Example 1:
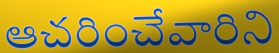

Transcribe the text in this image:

ఆచరించేవారిని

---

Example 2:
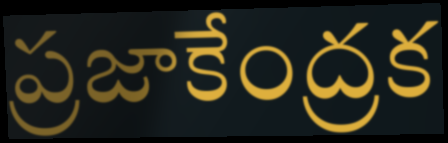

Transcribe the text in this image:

ప్రజాకేంద్రక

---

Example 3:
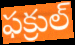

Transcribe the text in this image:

ఫక్రుల్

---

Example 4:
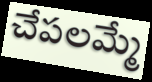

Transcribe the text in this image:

చేపలమ్మే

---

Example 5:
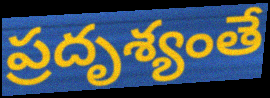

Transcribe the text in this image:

ప్రదృశ్యంతే